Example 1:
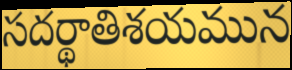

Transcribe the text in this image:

సదర్థాతిశయమున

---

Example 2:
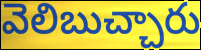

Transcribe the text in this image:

వెలిబుచ్చారు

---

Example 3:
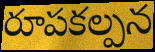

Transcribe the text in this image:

రూపకల్పన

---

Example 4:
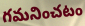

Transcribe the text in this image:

గమనించటం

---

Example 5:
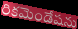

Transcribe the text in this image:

రికమెండేషను